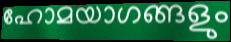
ഹോമയാഗങ്ങളും